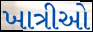
ખાત્રીઓ